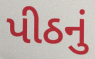
પીઠનું